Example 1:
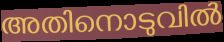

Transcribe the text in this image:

അതിനൊടുവിൽ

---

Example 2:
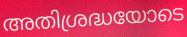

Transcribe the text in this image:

അതിശ്രദ്ധയോടെ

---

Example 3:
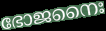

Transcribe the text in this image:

ഭോജനൈഃ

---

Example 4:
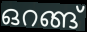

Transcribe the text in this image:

ഒറങ്ങ്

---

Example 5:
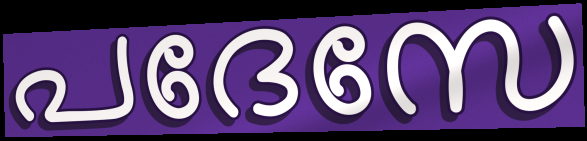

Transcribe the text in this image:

പദേസേ